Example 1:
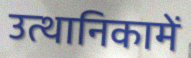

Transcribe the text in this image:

उत्थानिकामें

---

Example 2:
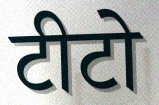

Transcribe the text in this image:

टीटो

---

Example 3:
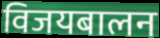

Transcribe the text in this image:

विजयबालन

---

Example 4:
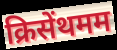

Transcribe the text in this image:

क्रिसेंथमम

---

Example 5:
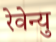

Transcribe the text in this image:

रेवेन्यु